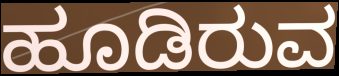
ಹೂಡಿರುವ